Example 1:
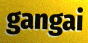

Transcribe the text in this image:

gangai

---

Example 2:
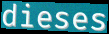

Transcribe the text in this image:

dieses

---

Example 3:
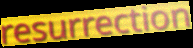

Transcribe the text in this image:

resurrection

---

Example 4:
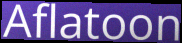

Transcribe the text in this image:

Aflatoon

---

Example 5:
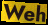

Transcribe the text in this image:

Weh